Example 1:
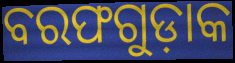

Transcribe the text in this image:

ବରଫଗୁଡ଼ାକ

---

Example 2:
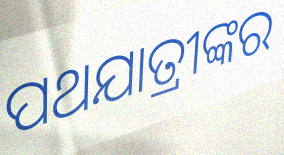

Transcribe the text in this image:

ପଥଯାତ୍ରୀଙ୍କର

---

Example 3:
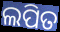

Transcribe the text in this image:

ଲପିତ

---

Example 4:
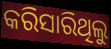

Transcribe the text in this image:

କରିସାରିଥିଲୁ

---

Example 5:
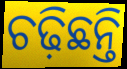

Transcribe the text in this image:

ଚଢ଼ିଛନ୍ତି